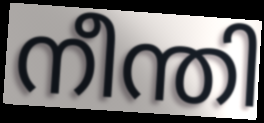
നീന്തി